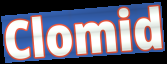
Clomid